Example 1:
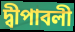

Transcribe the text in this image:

দ্বীপাবলী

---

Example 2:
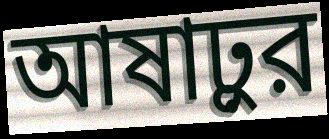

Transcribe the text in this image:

আষাঢ়ুর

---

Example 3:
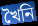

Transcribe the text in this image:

খৈনি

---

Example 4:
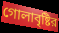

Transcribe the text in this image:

গোলাবৃষ্টির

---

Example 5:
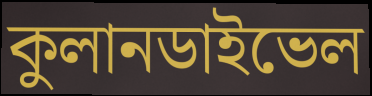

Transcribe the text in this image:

কুলানডাইভেল